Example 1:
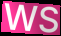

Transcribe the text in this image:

WS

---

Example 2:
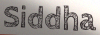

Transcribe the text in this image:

Siddha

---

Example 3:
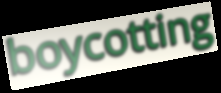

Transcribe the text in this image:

boycotting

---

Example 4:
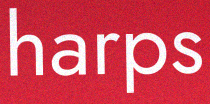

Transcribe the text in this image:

harps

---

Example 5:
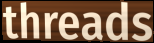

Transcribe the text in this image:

threads